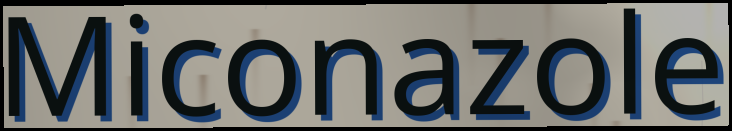
Miconazole